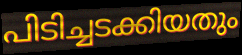
പിടിച്ചടക്കിയതും